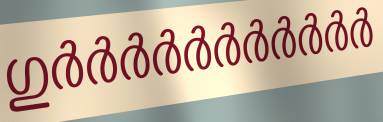
ഗുർർർർർർർർർർർ